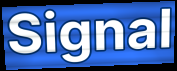
Signal